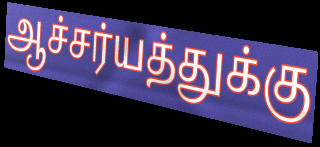
ஆச்சர்யத்துக்கு